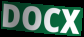
DOCX